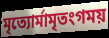
মৃত্যোর্মামৃতংগময়